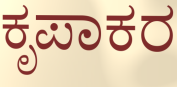
ಕೃಪಾಕರ